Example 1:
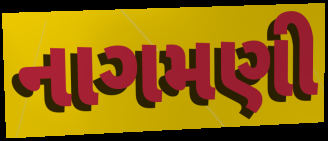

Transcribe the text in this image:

નાગમણી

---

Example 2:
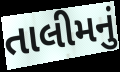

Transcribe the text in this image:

તાલીમનું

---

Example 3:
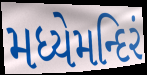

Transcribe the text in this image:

મધ્યેમન્દિરં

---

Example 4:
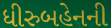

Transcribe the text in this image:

ધીરુબહેનની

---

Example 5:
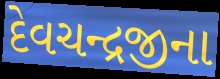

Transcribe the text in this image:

દેવચન્દ્રજીના